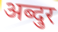
अब्दुर